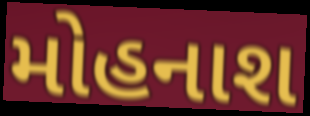
મોહનાશ